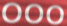
ooo